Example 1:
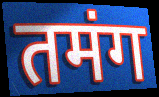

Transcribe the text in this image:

तमंग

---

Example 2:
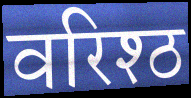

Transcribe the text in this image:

वरिश्ठ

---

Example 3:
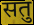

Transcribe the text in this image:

सतु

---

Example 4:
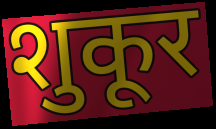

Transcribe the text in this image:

शुकूर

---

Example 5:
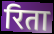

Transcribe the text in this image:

रिता